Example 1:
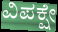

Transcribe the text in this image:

ವಿಪಕ್ಷೇ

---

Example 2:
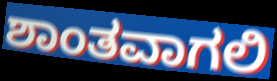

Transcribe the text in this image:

ಶಾಂತವಾಗಲಿ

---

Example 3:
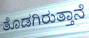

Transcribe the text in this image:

ತೊಡಗಿರುತ್ತಾನೆ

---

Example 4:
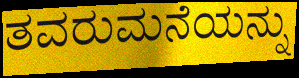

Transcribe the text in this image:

ತವರುಮನೆಯನ್ನು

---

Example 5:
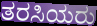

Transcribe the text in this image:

ತರಸಿಯರು